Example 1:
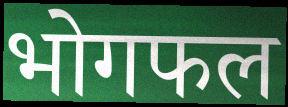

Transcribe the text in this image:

भोगफल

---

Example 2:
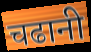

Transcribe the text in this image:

चढानी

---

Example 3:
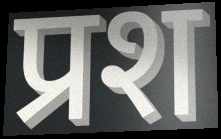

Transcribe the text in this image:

प्रश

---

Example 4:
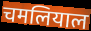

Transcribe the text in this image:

चमलियाल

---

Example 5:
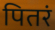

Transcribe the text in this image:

पितरं